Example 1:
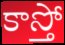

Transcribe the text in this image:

కాస్తో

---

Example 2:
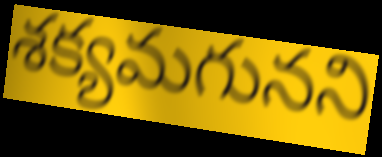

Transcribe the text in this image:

శక్యమగునని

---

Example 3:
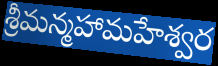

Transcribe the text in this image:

శ్రీమన్మహామహేశ్వర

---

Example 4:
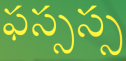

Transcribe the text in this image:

ఫస్సస్స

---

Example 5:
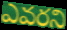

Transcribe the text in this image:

ఎవరని